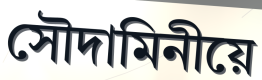
সৌদামিনীয়ে